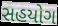
સહયોગ